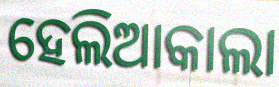
ହେଲିଆକାଲା